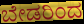
ಬೇಡರಿಂದ